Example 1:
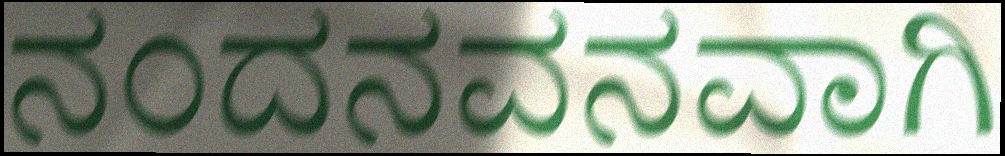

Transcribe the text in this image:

ನಂದನವನವಾಗಿ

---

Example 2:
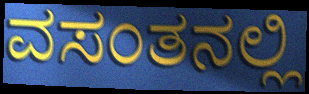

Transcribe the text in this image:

ವಸಂತನಲ್ಲಿ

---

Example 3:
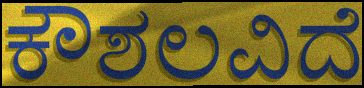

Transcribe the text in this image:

ಕೌಶಲವಿದೆ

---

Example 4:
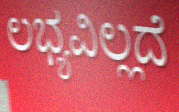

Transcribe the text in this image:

ಲಭ್ಯವಿಲ್ಲದೆ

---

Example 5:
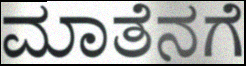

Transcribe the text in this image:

ಮಾತೆನಗೆ